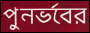
পুনর্ভবের